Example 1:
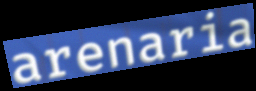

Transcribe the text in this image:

arenaria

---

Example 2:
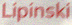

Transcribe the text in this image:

Lipinski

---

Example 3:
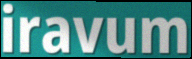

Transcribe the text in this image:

iravum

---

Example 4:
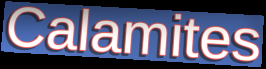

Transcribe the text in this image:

Calamites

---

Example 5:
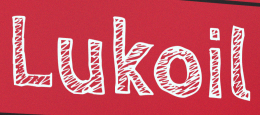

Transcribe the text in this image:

Lukoil